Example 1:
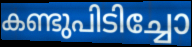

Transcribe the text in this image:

കണ്ടുപിടിച്ചോ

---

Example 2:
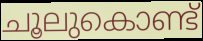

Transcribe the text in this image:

ചൂലുകൊണ്ട്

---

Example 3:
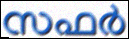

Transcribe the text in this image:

സഫർ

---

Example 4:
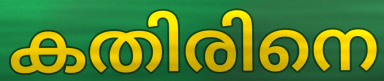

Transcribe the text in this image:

കതിരിനെ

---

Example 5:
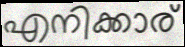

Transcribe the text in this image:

എനിക്കാര്